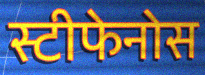
स्टीफेनोस